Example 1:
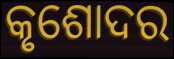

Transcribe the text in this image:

କୃଶୋଦର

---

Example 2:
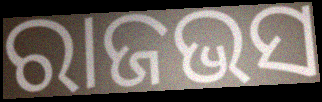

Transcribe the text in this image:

ରାଜଭସ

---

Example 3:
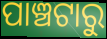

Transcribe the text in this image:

ପାଞ୍ଚଟାରୁ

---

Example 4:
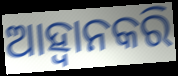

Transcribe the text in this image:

ଆହ୍ୱାନକରି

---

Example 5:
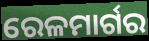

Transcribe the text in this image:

ରେଳମାର୍ଗର